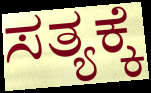
ಸತ್ಯಕ್ಕೆ